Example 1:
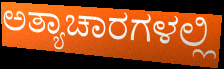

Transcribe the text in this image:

ಅತ್ಯಾಚಾರಗಳಲ್ಲಿ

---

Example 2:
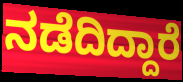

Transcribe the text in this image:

ನಡೆದಿದ್ದಾರೆ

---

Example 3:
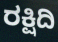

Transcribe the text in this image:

ರಕ್ಷಿದಿ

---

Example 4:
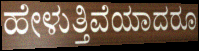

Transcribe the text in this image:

ಹೇಳುತ್ತಿವೆಯಾದರೂ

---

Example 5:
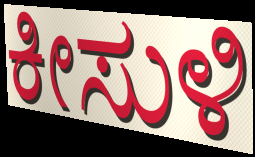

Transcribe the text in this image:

ಕೀಸುಳಿ